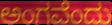
ಅಂಗವೆಂದು